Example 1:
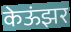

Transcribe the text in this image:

केऊंझर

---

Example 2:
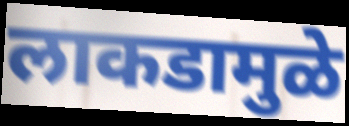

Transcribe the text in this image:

लाकडामुळे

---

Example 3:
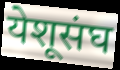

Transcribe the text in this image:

येशूसंघ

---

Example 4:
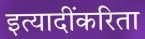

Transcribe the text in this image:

इत्यादींकरिता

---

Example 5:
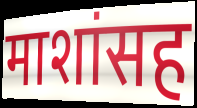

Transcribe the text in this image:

माशांसह